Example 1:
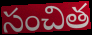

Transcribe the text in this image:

సంచిత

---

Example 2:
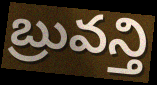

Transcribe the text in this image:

బ్రువన్తి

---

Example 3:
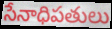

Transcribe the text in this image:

సేనాధిపతులు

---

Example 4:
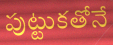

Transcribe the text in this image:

పుట్టుకతోనే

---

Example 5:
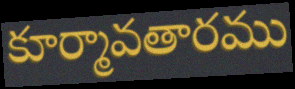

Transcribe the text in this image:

కూర్మావతారము